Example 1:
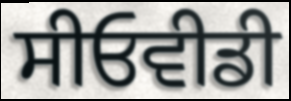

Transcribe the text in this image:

ਸੀਓਵੀਡੀ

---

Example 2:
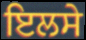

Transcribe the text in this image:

ਇਲਸੇ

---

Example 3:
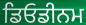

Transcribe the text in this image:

ਡਿਓਡੀਨਮ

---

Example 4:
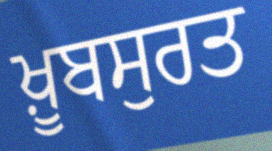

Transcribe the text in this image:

ਖ਼ੂਬਸੁਰਤ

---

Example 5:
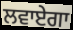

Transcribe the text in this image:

ਲਵਾਏਗਾ